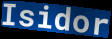
Isidor